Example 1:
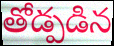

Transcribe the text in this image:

తోడ్పడిన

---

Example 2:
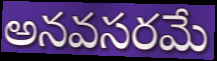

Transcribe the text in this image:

అనవసరమే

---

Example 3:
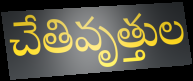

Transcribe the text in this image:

చేతివృత్తుల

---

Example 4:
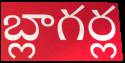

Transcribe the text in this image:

బ్లాగర్ల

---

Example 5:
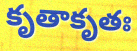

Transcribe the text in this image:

కృతాకృతః